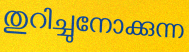
തുറിച്ചുനോക്കുന്ന